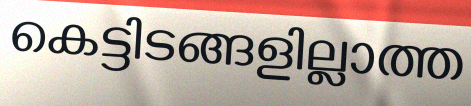
കെട്ടിടങ്ങളില്ലാത്ത